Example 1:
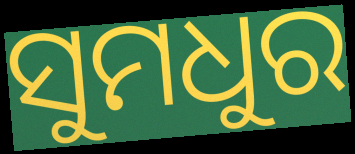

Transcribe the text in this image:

ସୁମଧୁର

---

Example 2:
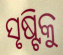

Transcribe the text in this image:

ସୃଷ୍ଟିକୁ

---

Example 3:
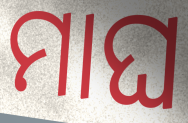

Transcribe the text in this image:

ମାଘ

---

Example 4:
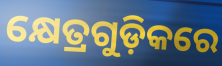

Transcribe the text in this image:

କ୍ଷେତ୍ରଗୁଡ଼ିକରେ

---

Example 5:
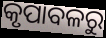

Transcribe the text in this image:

କୃପାବଳରୁ